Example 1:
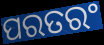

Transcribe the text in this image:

ପରତରଂ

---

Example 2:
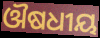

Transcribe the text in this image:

ଔଷଧୀୟ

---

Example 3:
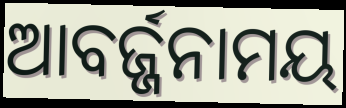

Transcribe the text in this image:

ଆବର୍ଜ୍ଜନାମୟ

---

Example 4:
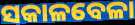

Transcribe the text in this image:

ସକାଳବେଳା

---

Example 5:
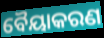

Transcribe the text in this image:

ବୈୟାକରଣ